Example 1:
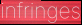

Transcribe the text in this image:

infringes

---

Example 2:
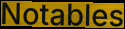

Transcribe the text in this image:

Notables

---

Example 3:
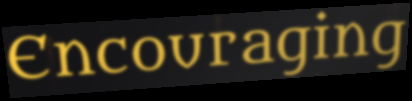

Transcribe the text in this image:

Encouraging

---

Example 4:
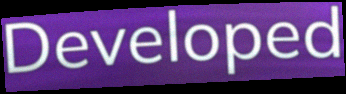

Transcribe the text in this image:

Developed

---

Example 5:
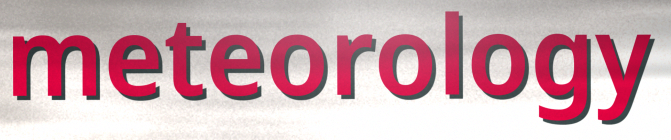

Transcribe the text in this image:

meteorology